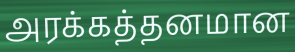
அரக்கத்தனமான